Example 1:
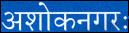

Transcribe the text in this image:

अशोकनगरः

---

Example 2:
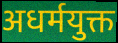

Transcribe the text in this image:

अधर्मयुक्त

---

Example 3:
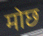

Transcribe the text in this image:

मोछ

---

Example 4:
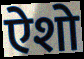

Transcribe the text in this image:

ऐशो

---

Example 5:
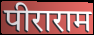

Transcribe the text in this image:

पीराराम